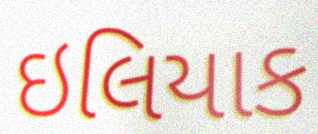
ઇલિયાક